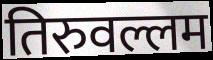
तिरुवल्लम